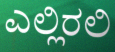
ಎಲ್ಲಿರಲಿ